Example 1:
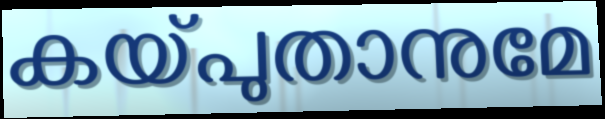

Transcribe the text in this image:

കയ്പുതാനുമേ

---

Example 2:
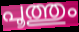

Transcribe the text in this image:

പൂത്തും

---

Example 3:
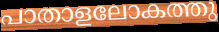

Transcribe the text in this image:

പാതാളലോകത്തു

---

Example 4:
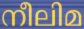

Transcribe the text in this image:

നീലിമ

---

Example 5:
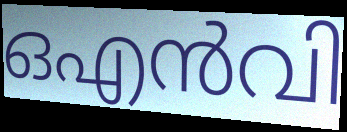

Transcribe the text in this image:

ഒഎൻവി